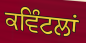
ਕਵਿੰਟਲਾਂ